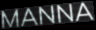
MANNA